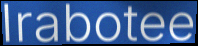
Irabotee